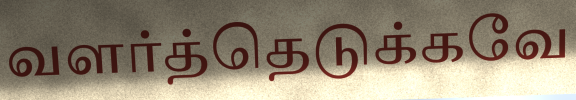
வளர்த்தெடுக்கவே